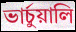
ভার্চুয়ালি